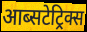
आब्सटेट्रिक्स